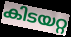
കിടയറ്റ